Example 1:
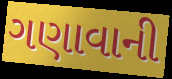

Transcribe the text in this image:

ગણાવાની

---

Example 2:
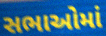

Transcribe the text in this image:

સભાઓમાં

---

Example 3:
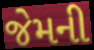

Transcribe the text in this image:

જેમની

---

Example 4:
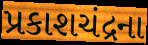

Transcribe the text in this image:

પ્રકાશચંદ્રના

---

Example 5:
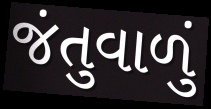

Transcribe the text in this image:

જંતુવાળું